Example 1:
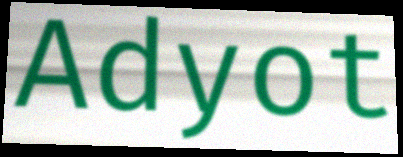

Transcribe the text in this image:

Adyot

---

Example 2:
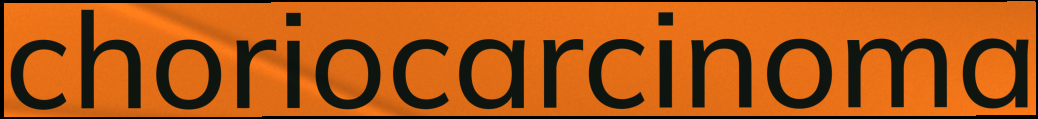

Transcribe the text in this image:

choriocarcinoma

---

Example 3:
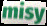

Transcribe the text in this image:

misy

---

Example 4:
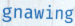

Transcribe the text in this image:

gnawing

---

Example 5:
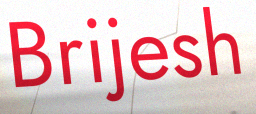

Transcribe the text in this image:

Brijesh